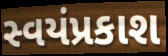
સ્વયંપ્રકાશ